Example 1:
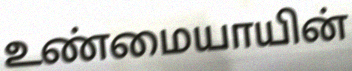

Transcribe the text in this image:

உண்மையாயின்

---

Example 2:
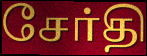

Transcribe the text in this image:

சேர்தி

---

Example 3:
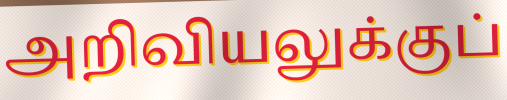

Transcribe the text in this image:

அறிவியலுக்குப்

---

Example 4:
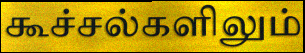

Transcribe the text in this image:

கூச்சல்களிலும்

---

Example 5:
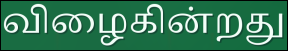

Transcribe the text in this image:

விழைகின்றது